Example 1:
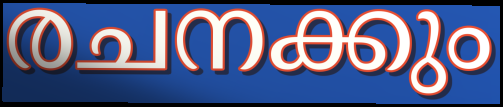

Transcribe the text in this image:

രചനക്കും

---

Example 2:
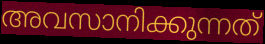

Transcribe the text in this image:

അവസാനിക്കുന്നത്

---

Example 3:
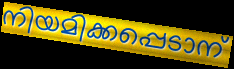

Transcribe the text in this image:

നിയമിക്കപ്പെടാന്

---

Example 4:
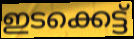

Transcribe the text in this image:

ഇടക്കെട്ട്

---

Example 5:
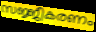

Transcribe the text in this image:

സജ്ജീകരണം